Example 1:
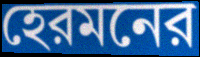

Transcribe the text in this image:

হেরমনের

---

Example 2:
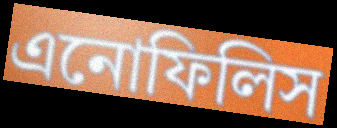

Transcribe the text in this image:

এনোফিলিস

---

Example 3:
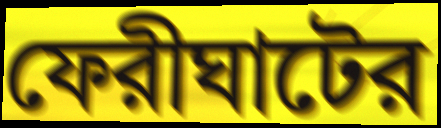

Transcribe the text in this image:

ফেরীঘাটের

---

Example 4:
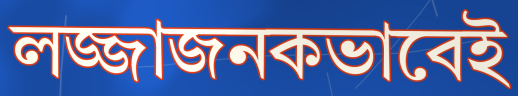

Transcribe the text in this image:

লজ্জাজনকভাবেই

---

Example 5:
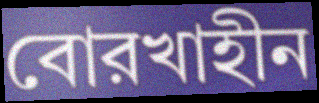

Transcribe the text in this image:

বোরখাহীন